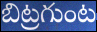
బిట్రగుంట